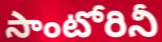
సాంటోరినీ